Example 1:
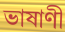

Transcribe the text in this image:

ভাষাণী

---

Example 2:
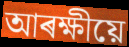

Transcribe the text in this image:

আৰক্ষীয়ে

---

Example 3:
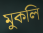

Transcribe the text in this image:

মুকলি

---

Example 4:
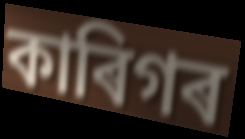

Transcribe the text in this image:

কাৰিগৰ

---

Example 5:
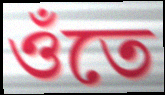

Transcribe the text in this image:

ওঁতে